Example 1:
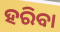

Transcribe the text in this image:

ହରିବା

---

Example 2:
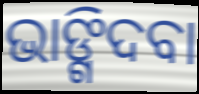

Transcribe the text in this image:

ଭାଙ୍ଗିଦବା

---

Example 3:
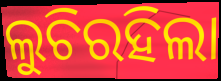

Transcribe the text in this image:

ଲୁଚିରହିଲା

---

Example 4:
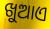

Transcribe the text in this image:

ଖୁଆଏ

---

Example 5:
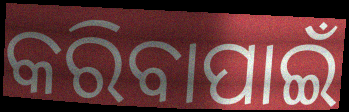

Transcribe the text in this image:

କରିବାପାଇଁ